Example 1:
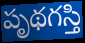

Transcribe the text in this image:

పృథగస్తి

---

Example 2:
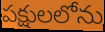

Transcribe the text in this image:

పక్షులలోను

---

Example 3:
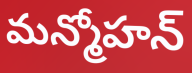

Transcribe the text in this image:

మన్మోహన్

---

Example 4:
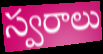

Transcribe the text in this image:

స్వరాలు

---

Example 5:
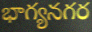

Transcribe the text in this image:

భాగ్యనగర